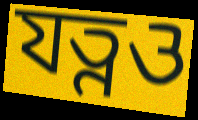
যত্নও